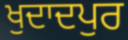
ਖੁਦਾਦਪੁਰ